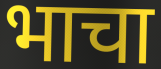
भाचा